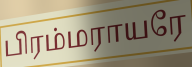
பிரம்மராயரே